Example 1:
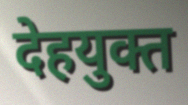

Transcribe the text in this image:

देहयुक्त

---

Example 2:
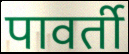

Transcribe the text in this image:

पावर्ती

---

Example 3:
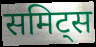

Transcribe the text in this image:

समिट्स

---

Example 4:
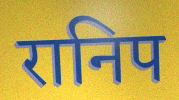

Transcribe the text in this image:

रानिप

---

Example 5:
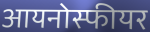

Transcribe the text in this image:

आयनोस्फीयर